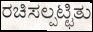
ರಚಿಸಲ್ಪಟ್ಟಿತು